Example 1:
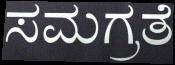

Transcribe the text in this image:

ಸಮಗ್ರತೆ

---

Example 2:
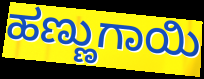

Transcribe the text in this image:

ಹಣ್ಣುಗಾಯಿ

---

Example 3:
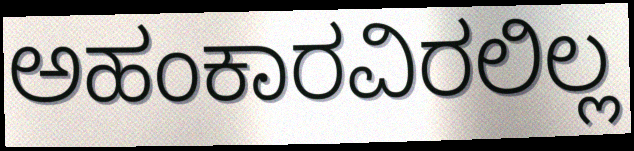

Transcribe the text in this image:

ಅಹಂಕಾರವಿರಲಿಲ್ಲ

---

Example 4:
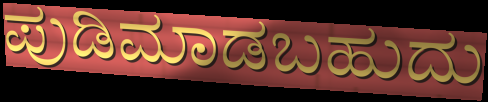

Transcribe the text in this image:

ಪುಡಿಮಾಡಬಹುದು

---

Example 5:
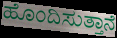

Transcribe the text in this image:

ಹೊಂದಿಸುತ್ತಾನೆ